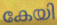
കേയി